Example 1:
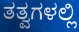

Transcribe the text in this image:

ತತ್ವಗಳಲ್ಲಿ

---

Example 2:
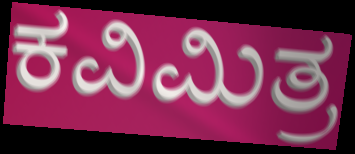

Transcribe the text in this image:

ಕವಿಮಿತ್ರ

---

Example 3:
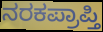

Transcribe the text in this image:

ನರಕಪ್ರಾಪ್ತಿ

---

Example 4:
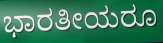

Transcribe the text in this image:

ಭಾರತೀಯರೂ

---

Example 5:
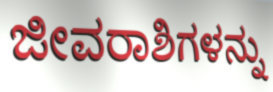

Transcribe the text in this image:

ಜೀವರಾಶಿಗಳನ್ನು